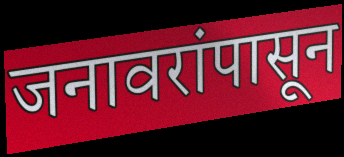
जनावरांपासून